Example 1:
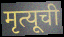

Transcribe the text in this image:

मृत्यूची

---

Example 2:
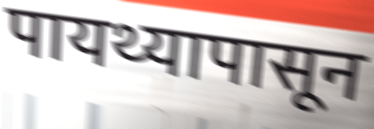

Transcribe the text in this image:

पायथ्यापासून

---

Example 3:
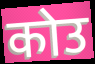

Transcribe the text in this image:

कोउ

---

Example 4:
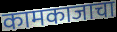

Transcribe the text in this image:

कामकाजाचा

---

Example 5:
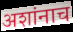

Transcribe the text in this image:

अशांनाच